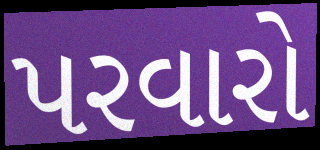
પરવારો